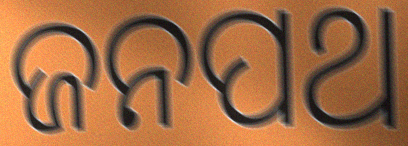
ଜନପଥ